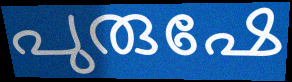
പുരുഷേ